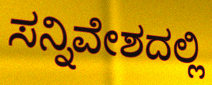
ಸನ್ನಿವೇಶದಲ್ಲಿ